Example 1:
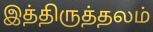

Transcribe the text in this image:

இத்திருத்தலம்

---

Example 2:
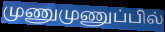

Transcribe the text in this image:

முணுமுணுப்பில்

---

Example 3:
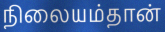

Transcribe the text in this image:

நிலையம்தான்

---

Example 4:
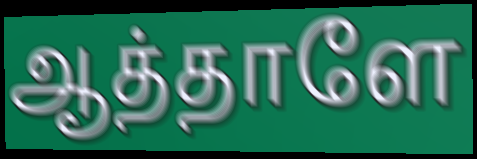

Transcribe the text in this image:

ஆத்தாளே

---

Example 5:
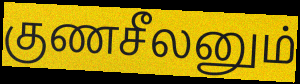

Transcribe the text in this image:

குணசீலனும்